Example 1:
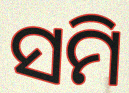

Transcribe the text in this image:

ସମି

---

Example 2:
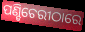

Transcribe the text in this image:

ପଣ୍ଡିଚେରୀଠାରେ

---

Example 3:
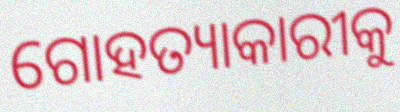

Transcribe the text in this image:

ଗୋହତ୍ୟାକାରୀକୁ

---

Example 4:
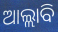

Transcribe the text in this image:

ଆଲ୍ଲାବି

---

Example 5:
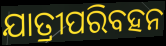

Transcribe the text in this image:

ଯାତ୍ରୀପରିବହନ